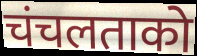
चंचलताको